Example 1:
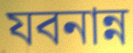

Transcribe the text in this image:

যবনান্ন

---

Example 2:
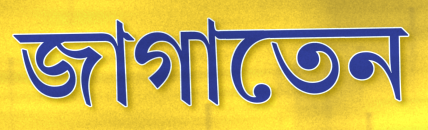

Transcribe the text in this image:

জাগাতেন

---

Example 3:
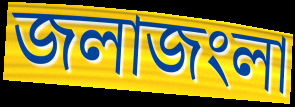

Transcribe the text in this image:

জলাজংলা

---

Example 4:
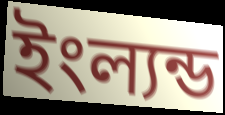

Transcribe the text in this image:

ইংল্যন্ড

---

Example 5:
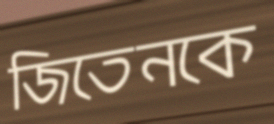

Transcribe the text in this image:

জিতেনকে